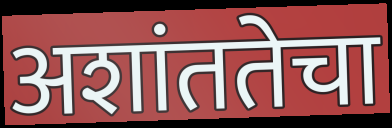
अशांततेचा